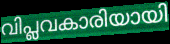
വിപ്ലവകാരിയായി